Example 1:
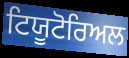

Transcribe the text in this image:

ਟਿਯੂਟੋਰਿਅਲ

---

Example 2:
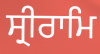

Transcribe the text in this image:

ਸ੍ਰੀਰਾਮਿ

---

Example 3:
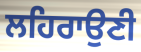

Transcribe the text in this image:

ਲਹਿਰਾਉਣੀ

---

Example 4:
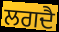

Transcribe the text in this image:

ਲਗਦੈ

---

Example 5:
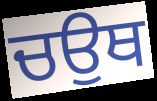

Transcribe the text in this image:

ਚਉਥ